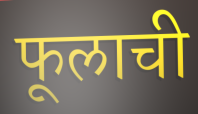
फूलाची